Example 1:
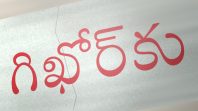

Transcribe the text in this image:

గిఖోర్‌కు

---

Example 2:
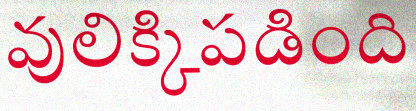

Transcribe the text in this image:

వులిక్కిపడింది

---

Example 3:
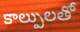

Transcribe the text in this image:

కాల్పులతో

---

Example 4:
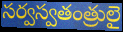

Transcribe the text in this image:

సర్వస్వతంత్రులై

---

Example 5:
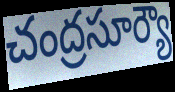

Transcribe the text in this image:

చంద్రసూర్యౌ